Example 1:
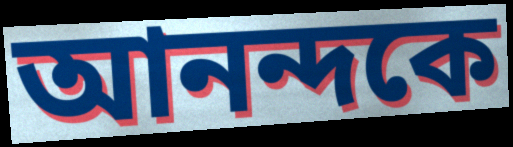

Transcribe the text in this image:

আনন্দকে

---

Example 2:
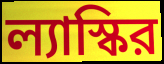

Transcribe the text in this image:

ল্যাস্কির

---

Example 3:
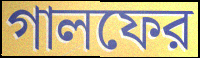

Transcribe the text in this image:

গালফের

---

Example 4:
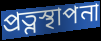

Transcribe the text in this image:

প্রত্নস্থাপনা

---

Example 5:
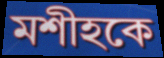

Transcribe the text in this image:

মশীহকে